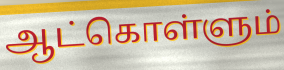
ஆட்கொள்ளும்